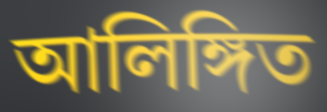
আলিঙ্গিত